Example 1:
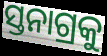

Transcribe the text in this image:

ସ୍ତନାଗ୍ରକୁ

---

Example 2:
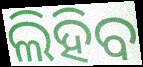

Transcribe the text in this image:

ଲିହିବ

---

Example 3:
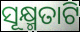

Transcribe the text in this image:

ସୂକ୍ଷ୍ମତାଟି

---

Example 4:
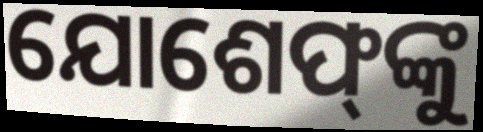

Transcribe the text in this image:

ଯୋଶେଫ୍‌ଙ୍କୁ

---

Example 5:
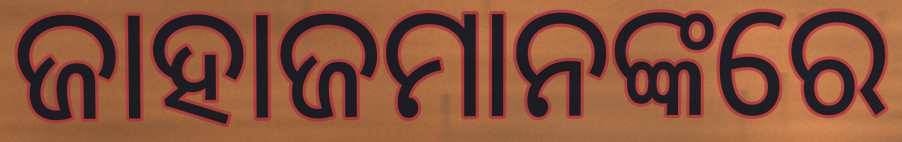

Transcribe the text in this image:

ଜାହାଜମାନଙ୍କରେ